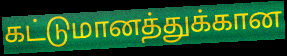
கட்டுமானத்துக்கான